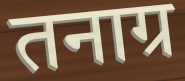
तनाग्र